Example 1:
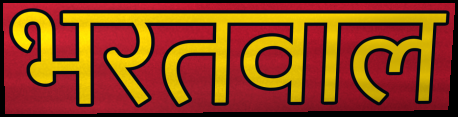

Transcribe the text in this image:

भरतवाल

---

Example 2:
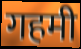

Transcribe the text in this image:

गहमी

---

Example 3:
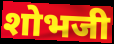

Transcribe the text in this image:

शोभजी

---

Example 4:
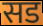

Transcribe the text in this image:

सड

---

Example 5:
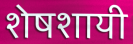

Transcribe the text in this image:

शेषशायी